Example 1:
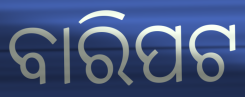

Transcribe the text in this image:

ବାରିପଟ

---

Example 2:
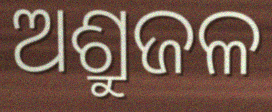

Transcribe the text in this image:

ଅଶ୍ରୁଜଳ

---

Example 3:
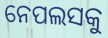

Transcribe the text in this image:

ନେପଲସକୁ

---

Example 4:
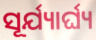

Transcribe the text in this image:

ସୂର୍ଯ୍ୟାର୍ଘ୍ୟ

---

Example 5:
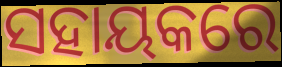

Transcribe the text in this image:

ସହାୟକରେ